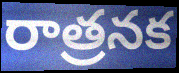
రాత్రనక